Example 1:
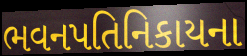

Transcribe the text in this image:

ભવનપતિનિકાયના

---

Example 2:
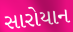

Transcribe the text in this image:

સારોયાન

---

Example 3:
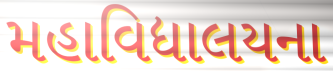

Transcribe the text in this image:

મહાવિદ્યાલયના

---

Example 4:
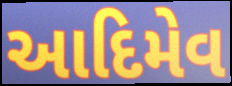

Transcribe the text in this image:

આદિમેવ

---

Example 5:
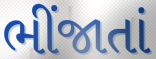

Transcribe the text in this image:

ભીંજાતાં